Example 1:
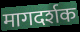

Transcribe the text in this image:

मागदर्शक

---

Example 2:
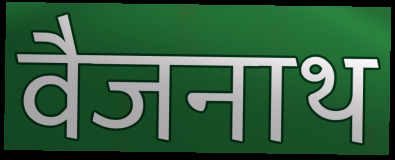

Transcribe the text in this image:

वैजनाथ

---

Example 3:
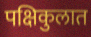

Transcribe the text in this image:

पक्षिकुलात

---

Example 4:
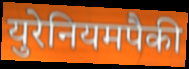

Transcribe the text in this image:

युरेनियमपैकी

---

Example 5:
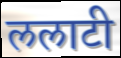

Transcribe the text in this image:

ललाटी